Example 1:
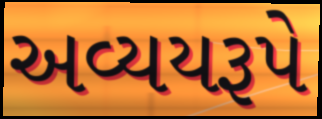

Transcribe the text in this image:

અવ્યયરૂપે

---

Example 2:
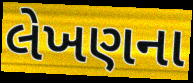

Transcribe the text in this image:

લેખણના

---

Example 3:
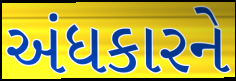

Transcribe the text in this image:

અંધકારને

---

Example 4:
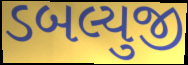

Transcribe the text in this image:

ડબલ્યુજી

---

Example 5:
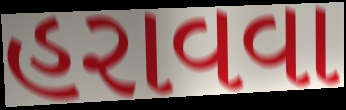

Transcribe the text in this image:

હરાવવા